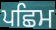
ਪਛਿਮ